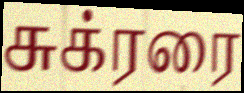
சுக்ரரை